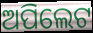
ଅପିଲେଟ